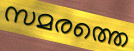
സമരത്തെ